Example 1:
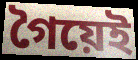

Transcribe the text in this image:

গৈয়েই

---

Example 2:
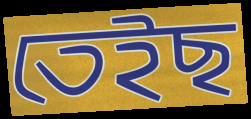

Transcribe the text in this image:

তেইছ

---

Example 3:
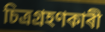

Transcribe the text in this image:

চিত্ৰগ্ৰহণকাৰী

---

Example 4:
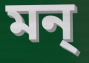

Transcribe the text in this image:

মন্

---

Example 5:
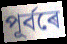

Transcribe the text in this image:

পূৰ্বৰে